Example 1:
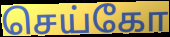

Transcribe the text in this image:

செய்கோ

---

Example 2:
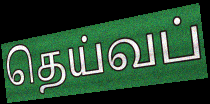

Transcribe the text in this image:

தெய்வப்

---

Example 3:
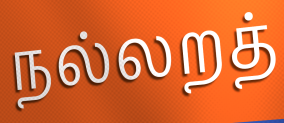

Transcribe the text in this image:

நல்லறத்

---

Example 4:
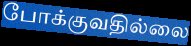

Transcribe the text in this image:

போக்குவதில்லை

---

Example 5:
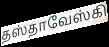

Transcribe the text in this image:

தஸ்தாவேஸ்கி